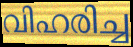
വിഹരിച്ച